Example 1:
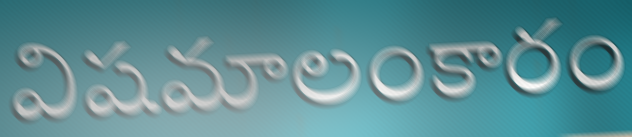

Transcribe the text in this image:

విషమాలంకారం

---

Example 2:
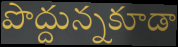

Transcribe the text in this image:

పొద్దున్నకూడా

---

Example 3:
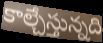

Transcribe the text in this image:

కాల్చేస్తున్నది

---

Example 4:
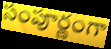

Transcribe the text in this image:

సంపూర్ణంగా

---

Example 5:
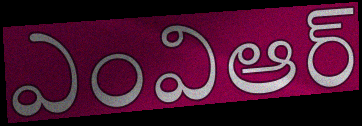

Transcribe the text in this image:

ఎంవిఆర్